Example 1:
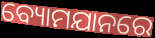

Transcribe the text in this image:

ବ୍ୟୋମଯାନରେ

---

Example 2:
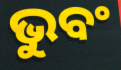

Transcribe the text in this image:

ଭୁବଂ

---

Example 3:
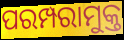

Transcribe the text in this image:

ପରମ୍ପରାମୁକ୍ତ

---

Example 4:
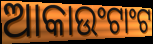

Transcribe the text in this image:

ଆକାଉଂଟାଂଟ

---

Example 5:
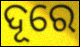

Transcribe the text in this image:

ଦୂରେ